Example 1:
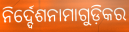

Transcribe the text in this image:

ନିର୍ଦ୍ଦେଶନାମାଗୁଡ଼ିକର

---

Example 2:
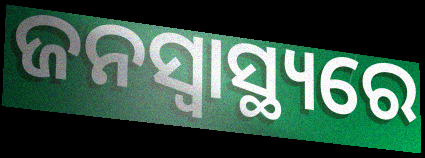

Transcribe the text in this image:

ଜନସ୍ବାସ୍ଥ୍ୟରେ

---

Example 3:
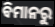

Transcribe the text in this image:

ବିମାନରୁ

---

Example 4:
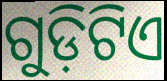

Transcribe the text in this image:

ଗୁଡ଼ିଟିଏ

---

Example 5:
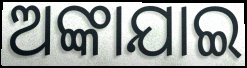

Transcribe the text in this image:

ଅଙ୍କାଯାଇ